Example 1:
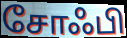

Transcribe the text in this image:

சோஃபி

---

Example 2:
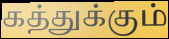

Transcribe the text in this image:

கத்துக்கும்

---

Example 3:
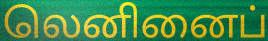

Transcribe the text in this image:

லெனினைப்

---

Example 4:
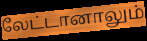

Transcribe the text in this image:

லேட்டானாலும்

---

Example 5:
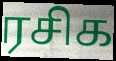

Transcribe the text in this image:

ரசிக